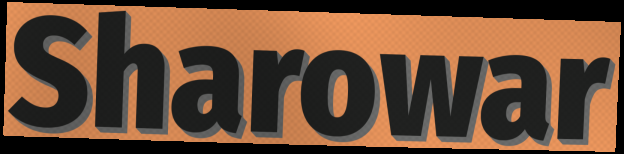
Sharowar